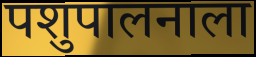
पशुपालनाला